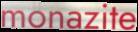
monazite